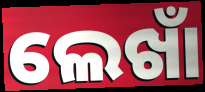
ଲେଖାଁ